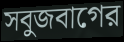
সবুজবাগের